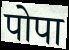
पोपा